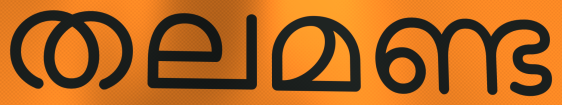
തലമണ്ട